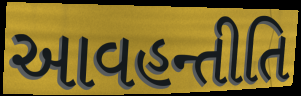
આવહન્તીતિ